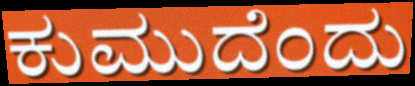
ಕುಮುದೆಂದು